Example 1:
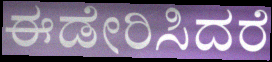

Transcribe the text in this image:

ಈಡೇರಿಸಿದರೆ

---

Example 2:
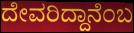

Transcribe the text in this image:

ದೇವರಿದ್ದಾನೆಂಬ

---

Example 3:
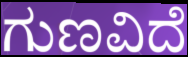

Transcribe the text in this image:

ಗುಣವಿದೆ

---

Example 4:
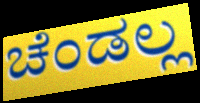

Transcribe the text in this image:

ಚೆಂಡಲ್ಲ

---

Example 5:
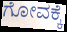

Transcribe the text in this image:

ಗೋವಕ್ಕೆ